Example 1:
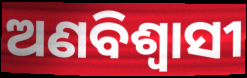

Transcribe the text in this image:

ଅଣବିଶ୍ୱାସୀ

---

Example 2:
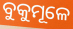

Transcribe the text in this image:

ବୁକୁମୂଳେ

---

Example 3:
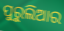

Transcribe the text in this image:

ପୁରୁଲିଆର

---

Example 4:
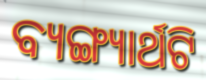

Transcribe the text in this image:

ବ୍ୟଙ୍ଗ୍ୟାର୍ଥଟି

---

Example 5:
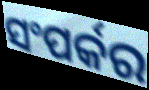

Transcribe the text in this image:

ସଂପର୍କର